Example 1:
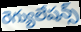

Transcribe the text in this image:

రెగ్యులేషన్స్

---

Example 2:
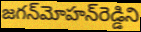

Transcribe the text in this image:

జగన్‌మోహన్‌రెడ్డిని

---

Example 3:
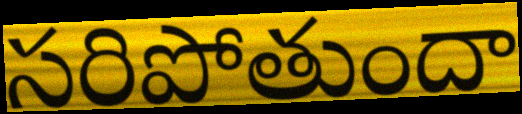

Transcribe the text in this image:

సరిపోతుందా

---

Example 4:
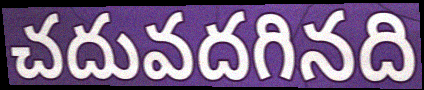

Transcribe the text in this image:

చదువదగినది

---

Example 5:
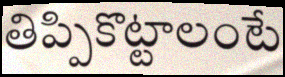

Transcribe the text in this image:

తిప్పికొట్టాలంటే